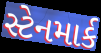
સ્ટેનમાર્ક